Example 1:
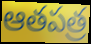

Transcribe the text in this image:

ఆతపత్ర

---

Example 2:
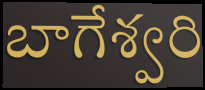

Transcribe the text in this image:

బాగేశ్వరి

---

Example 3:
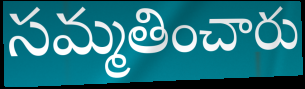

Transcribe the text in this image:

సమ్మతించారు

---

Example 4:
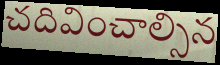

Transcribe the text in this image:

చదివించాల్సిన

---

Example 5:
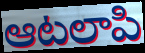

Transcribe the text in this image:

ఆటలాపి